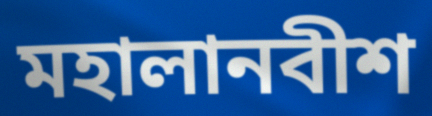
মহালানবীশ